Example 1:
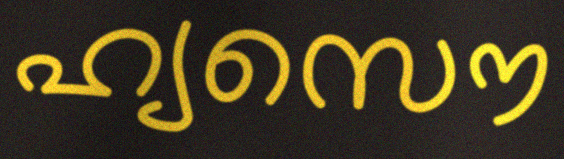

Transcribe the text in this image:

ഹ്യസൌ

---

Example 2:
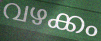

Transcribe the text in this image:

വഴക്കം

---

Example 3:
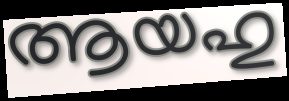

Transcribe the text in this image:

ആയഹു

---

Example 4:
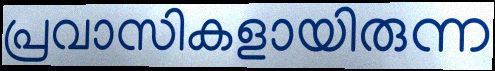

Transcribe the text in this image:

പ്രവാസികളായിരുന്ന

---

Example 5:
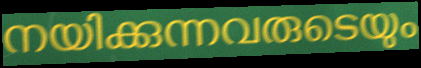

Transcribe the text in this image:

നയിക്കുന്നവരുടെയും